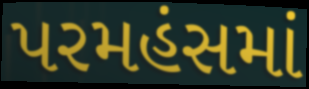
પરમહંસમાં